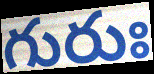
గురుః